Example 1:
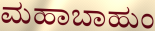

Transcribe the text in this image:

ಮಹಾಬಾಹುಂ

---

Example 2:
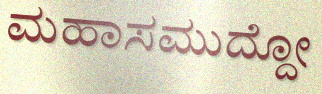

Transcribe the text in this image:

ಮಹಾಸಮುದ್ದೋ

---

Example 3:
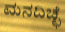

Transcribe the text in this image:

ಮನದಿಚ್ಛೆ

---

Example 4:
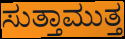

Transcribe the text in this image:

ಸುತ್ತಾಮುತ್ತ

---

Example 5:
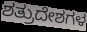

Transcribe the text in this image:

ಶತ್ರುದೇಶಗಳ